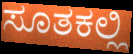
ಸೂತಕಲ್ಲಿ